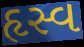
હૃસ્વ